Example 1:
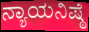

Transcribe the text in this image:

ನ್ಯಾಯನಿಷ್ಠೆ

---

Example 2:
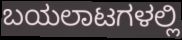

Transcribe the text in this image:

ಬಯಲಾಟಗಳಲ್ಲಿ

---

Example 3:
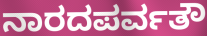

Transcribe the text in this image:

ನಾರದಪರ್ವತೌ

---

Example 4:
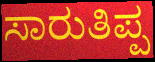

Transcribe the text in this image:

ಸಾರುತಿಪ್ಪ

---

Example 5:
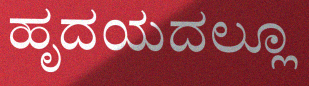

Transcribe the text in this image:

ಹೃದಯದಲ್ಲೂ